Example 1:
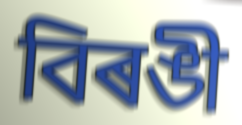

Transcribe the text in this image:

বিৰঙী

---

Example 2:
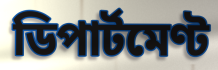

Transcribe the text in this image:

ডিপাৰ্টমেণ্ট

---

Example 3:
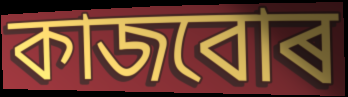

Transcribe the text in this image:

কাজবোৰ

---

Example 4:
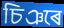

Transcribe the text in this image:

চিঞৰে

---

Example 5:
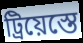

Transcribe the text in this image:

ট্ৰিয়েস্তে